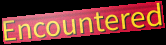
Encountered